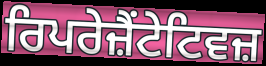
ਰਿਪਰੇਜ਼ੈਂਟੇਟਿਵਜ਼